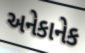
અનેકાનેક